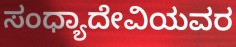
ಸಂಧ್ಯಾದೇವಿಯವರ